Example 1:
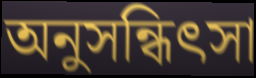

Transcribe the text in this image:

অনুসন্ধিৎসা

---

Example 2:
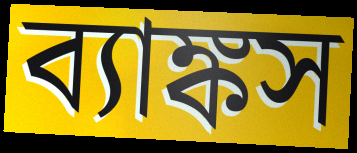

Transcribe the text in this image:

ব্যাঙ্কস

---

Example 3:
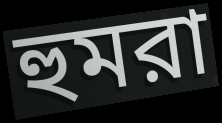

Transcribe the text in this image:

হুমরা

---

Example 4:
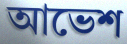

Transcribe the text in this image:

আভেশ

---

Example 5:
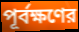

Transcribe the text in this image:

পূর্বক্ষণের